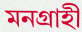
মনগ্রাহী